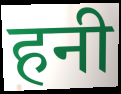
हनी